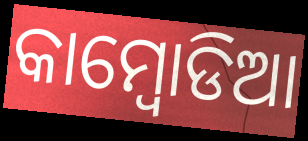
କାମ୍ବୋଡିଆ